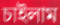
চাইলাম